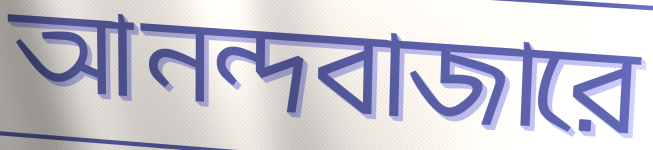
আনন্দবাজারে